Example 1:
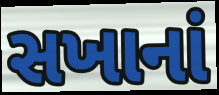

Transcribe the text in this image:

સખાનાં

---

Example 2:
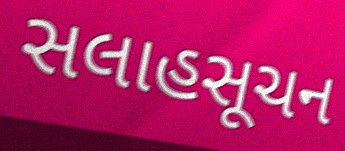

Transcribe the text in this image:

સલાહસૂચન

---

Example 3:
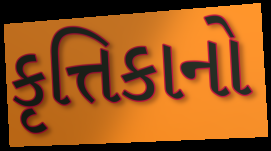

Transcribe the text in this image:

કૃત્તિકાનો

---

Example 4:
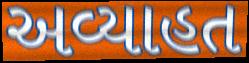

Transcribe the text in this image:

અવ્યાહત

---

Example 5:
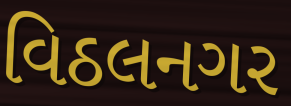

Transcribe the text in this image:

વિઠલનગર